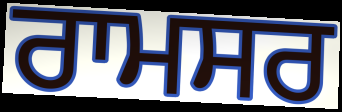
ਰਾਮਸਰ